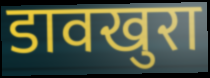
डावखुरा